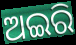
ଅଇରି